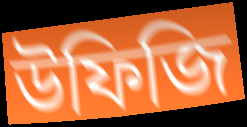
উফিজি